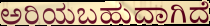
ಅರಿಯಬಹುದಾಗಿದೆ